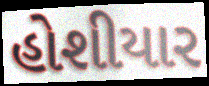
હોશીયાર